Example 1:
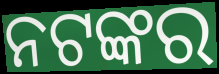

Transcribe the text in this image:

ନଟଙ୍କର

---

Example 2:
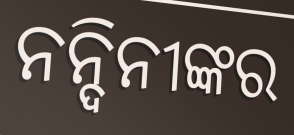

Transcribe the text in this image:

ନନ୍ଦିନୀଙ୍କର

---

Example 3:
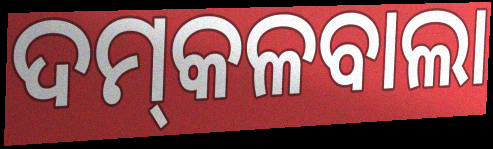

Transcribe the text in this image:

ଦମ୍‍କଳବାଲା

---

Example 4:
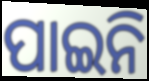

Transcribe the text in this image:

ପାଇନି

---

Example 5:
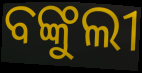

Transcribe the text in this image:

ବଙ୍କୁଲୀ